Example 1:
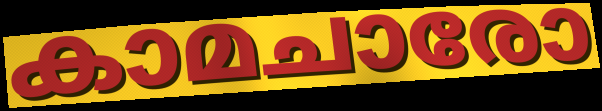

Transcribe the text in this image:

കാമചാരോ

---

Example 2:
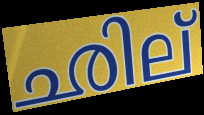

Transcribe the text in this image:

ഛില്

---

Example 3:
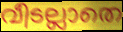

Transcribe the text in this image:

വീടല്ലാതെ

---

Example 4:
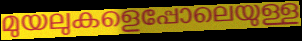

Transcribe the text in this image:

മുയലുകളെപ്പോലെയുള്ള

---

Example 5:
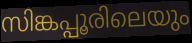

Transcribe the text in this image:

സിങ്കപ്പൂരിലെയും